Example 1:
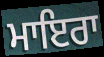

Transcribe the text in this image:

ਮਾਇਰਾ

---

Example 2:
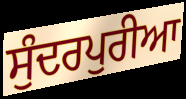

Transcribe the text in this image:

ਸੁੰਦਰਪੁਰੀਆ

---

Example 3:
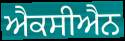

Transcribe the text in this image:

ਐਕਸੀਐਨ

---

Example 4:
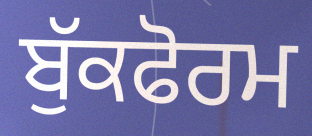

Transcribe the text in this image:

ਬੁੱਕਫੋਰਮ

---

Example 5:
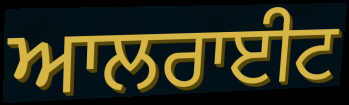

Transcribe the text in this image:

ਆਲਰਾਈਟ